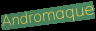
Andromaque